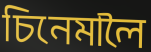
চিনেমালৈ